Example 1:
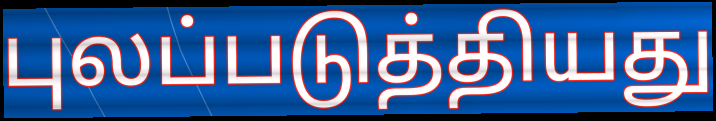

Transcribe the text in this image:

புலப்படுத்தியது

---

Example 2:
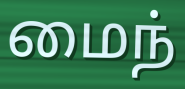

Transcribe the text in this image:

மைந்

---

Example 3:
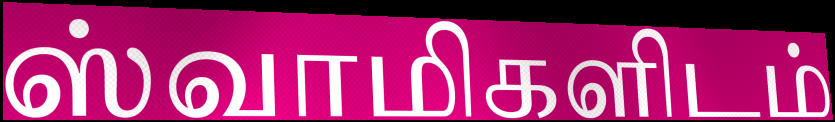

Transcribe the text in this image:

ஸ்வாமிகளிடம்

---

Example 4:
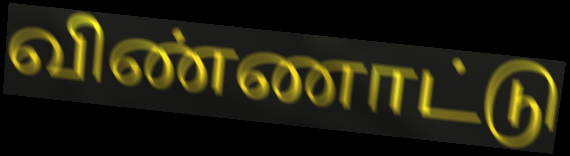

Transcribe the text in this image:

விண்ணாட்டு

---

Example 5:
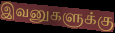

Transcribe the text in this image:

இவனுகளுக்கு